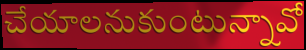
చేయాలనుకుంటున్నావో